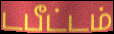
டபீட்டம்